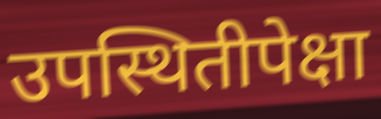
उपस्थितीपेक्षा